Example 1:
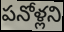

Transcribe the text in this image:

పనోళ్లని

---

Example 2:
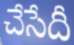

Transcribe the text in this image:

చేసేదీ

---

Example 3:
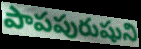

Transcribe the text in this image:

పాపపురుషుని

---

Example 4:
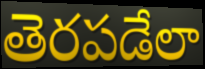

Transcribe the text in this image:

తెరపడేలా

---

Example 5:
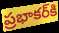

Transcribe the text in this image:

ప్రభాకర్‌కి